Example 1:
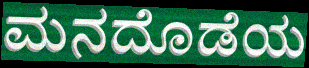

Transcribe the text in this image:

ಮನದೊಡೆಯ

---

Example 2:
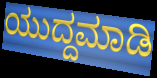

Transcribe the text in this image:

ಯುದ್ದಮಾಡಿ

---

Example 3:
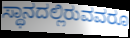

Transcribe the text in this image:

ಸ್ಥಾನದಲ್ಲಿರುವವರೂ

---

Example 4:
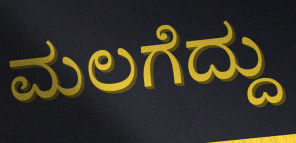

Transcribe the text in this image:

ಮಲಗೆದ್ದು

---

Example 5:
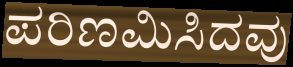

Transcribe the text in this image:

ಪರಿಣಮಿಸಿದವು